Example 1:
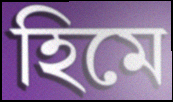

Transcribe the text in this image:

হিমে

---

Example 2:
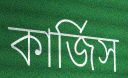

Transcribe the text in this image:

কার্জিস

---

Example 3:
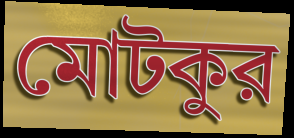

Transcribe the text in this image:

মোটকুর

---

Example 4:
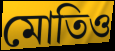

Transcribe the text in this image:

মোতিও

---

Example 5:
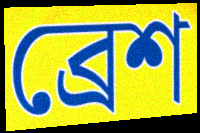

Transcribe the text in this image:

ব্রেশ